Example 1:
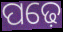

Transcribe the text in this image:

ପଢ଼େ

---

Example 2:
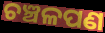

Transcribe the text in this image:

ଚଞ୍ଚଳପଣ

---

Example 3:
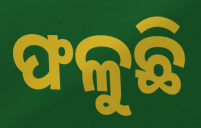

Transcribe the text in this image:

ଫଳୁଛି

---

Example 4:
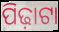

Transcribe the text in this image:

ପିଢ଼ାଟା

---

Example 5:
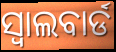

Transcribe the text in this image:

ସ୍ୱାଲବାର୍ଡ